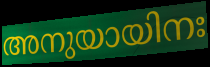
അനുയായിനഃ